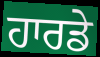
ਹਾਰਡੇ